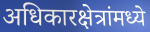
अधिकारक्षेत्रांमध्ये